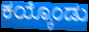
ಕಯ್ಕೊಂಡು